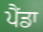
ਪੈਂਡਾ